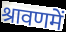
श्रावणमें